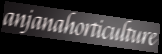
anjanahorticulture